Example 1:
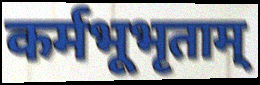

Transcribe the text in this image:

कर्मभूभृताम्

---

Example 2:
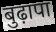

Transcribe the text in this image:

बुढ़ापा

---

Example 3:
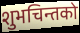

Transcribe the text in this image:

शुभचिन्तको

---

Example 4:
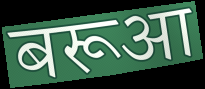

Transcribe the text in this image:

बरूआ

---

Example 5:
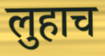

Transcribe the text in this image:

लुहाच